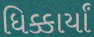
ધિક્કાર્યાં